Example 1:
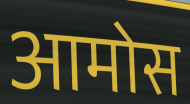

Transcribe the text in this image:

आमोस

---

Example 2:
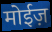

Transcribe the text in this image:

मोईज़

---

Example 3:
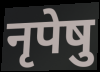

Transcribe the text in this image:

नृपेषु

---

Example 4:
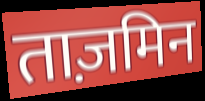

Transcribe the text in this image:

ताज़मिन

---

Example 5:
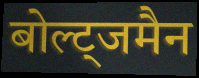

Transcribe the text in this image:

बोल्ट्जमैन